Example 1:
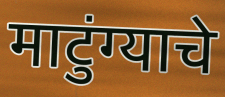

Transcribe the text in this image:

माटुंग्याचे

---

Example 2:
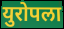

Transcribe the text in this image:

युरोपला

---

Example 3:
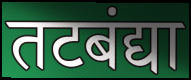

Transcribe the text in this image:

तटबंद्या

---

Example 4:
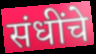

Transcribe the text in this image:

संधींचे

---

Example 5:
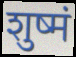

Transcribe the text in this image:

शुष्मं